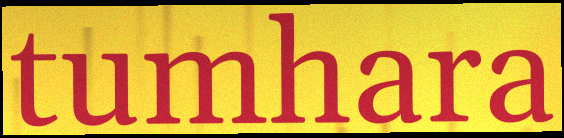
tumhara